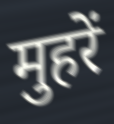
मुहरें